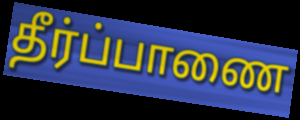
தீர்ப்பாணை